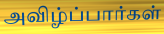
அவிழ்ப்பார்கள்